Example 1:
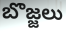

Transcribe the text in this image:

బొజ్జలు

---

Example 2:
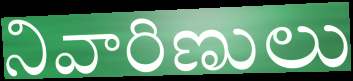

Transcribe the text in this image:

నివారిణులు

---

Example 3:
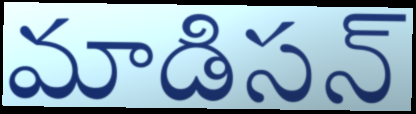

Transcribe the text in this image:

మాడిసన్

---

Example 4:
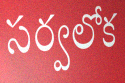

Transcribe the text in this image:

సర్వలోక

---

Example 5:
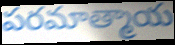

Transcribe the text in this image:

పరమాత్మాయ